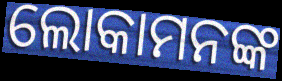
ଲୋକାମନଙ୍କ